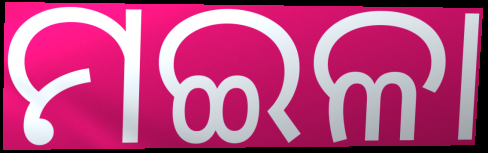
ମଇଳା